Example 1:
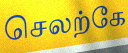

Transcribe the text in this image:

செலற்கே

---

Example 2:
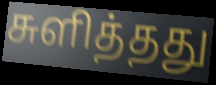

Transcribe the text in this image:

சுளித்தது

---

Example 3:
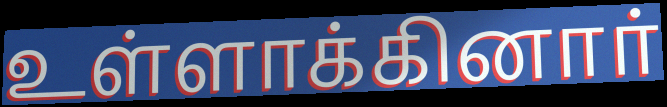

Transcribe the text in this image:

உள்ளாக்கினார்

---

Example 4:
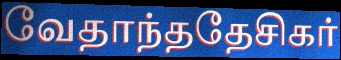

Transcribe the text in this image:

வேதாந்ததேசிகர்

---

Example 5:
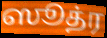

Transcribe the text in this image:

ஸூத்ர